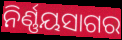
ନିର୍ଣ୍ଣୟସାଗର